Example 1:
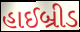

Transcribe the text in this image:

હાઈબ્રીડ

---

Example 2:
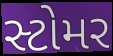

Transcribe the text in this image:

સ્ટોમર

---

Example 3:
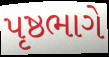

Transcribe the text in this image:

પૃષ્ઠભાગે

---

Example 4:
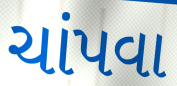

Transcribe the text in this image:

ચાંપવા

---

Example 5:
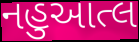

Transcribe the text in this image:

નહુઆત્લ